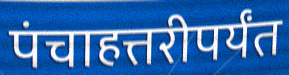
पंचाहत्तरीपर्यंत